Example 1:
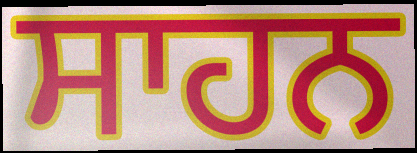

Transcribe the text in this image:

ਸਾਹਨ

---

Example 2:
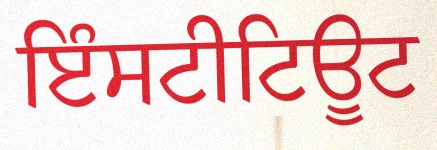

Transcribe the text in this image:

ਇੰਸਟੀਟਿਊਟ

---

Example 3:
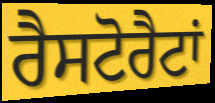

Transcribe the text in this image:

ਰੈਸਟੋਰੈਟਾਂ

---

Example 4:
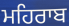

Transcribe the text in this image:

ਮਹਿਰਾਬ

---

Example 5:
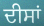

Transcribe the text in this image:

ਦੀਸਾਂ